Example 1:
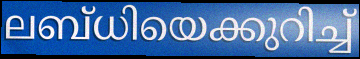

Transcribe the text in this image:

ലബ്ധിയെക്കുറിച്ച്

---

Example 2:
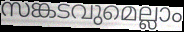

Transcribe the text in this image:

സങ്കടവുമെല്ലാം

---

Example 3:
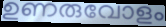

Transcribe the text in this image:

ഉണരുവോളം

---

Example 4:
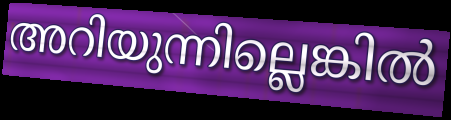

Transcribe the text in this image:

അറിയുന്നില്ലെങ്കിൽ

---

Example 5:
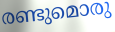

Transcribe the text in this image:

രണ്ടുമൊരു